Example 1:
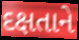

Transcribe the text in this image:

દક્ષતાને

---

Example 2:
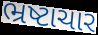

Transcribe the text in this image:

ભ્રષ્ટાચાર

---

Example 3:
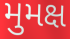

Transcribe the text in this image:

મુમક્ષ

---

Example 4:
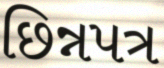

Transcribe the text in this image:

છિન્નપત્ર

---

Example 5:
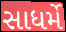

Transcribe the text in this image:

સાધર્મે